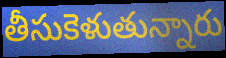
తీసుకెళుతున్నారు